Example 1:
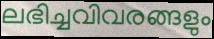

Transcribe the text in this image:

ലഭിച്ചവിവരങ്ങളും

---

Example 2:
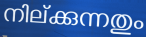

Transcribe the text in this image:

നില്ക്കുന്നതും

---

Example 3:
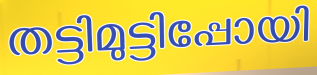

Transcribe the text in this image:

തട്ടിമുട്ടിപ്പോയി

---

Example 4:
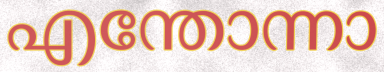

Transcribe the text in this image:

എന്തോന്നാ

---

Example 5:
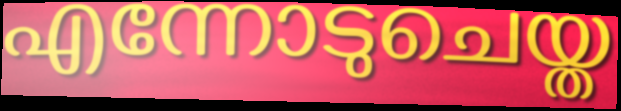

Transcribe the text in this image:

എന്നോടുചെയ്ത